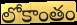
లోకాంతం